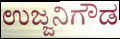
ಉಜ್ಜನಿಗೌಡ